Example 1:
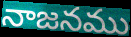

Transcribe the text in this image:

నాజనము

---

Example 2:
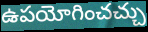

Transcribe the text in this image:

ఉపయోగించచ్చు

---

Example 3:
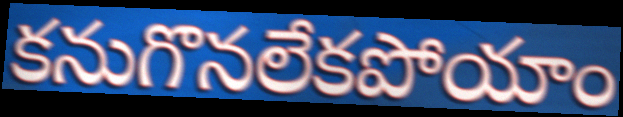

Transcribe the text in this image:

కనుగొనలేకపోయాం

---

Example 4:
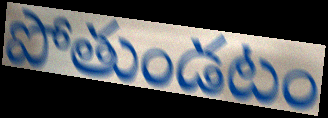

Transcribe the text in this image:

పోతుండటం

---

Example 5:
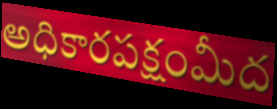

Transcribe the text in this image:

అధికారపక్షంమీద